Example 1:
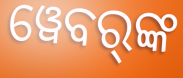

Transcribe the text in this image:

ୱେବର୍‌ଙ୍କ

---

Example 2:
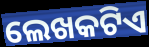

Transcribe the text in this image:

ଲେଖକଟିଏ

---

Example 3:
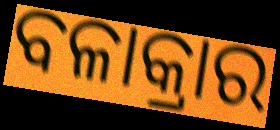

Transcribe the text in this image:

ବଳାକ୍ରାର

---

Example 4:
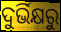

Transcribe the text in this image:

ଦୁର୍ଭିକ୍ଷରୁ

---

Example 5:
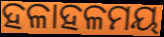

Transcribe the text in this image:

ହଳାହଳମୟ